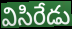
విసిరేడు